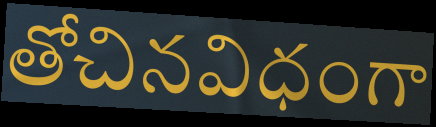
తోచినవిధంగా